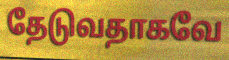
தேடுவதாகவே